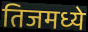
तिजमध्ये